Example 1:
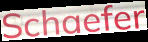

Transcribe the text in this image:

Schaefer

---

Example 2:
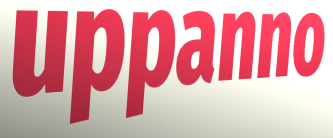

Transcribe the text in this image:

uppanno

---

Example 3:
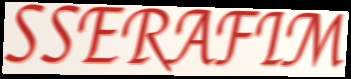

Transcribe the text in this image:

SSERAFIM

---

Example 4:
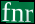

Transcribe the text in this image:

fnr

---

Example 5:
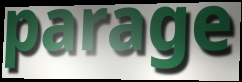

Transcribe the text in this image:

parage